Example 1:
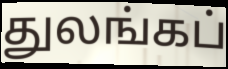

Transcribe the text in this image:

துலங்கப்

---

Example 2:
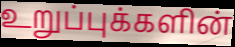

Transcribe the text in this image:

உறுப்புக்களின்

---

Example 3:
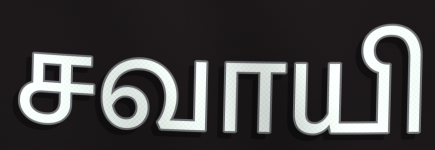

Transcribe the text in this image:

சவாயி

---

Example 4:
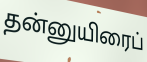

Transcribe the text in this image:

தன்னுயிரைப்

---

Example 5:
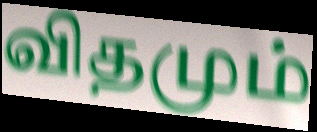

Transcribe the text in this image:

விதமும்